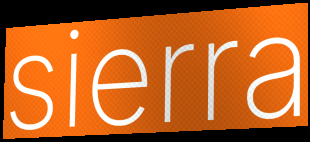
sierra